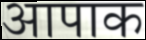
आपाक